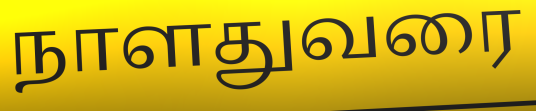
நாளதுவரை